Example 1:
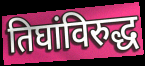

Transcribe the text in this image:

तिघांविरुद्ध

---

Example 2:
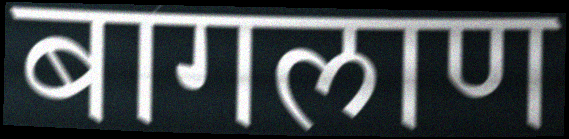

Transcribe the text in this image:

बागलाण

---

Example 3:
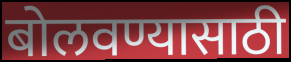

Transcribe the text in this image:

बोलवण्यासाठी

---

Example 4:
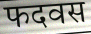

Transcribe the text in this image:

फदवस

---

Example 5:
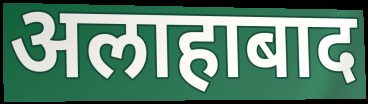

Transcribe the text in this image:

अलाहाबाद